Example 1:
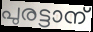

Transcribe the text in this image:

പുരട്ടാന്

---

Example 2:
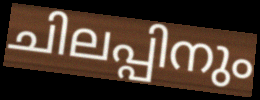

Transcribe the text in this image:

ചിലപ്പിനും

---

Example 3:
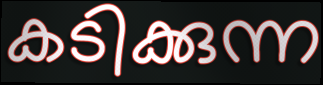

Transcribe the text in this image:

കടിക്കുന്ന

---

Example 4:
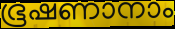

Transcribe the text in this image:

ഭൂഷണാനാം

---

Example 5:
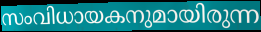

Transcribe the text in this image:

സംവിധായകനുമായിരുന്ന